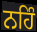
ਨਹਿੰ